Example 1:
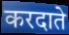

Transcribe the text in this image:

करदाते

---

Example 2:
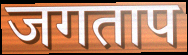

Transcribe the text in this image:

जगताप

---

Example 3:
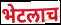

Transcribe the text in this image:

भेटलाच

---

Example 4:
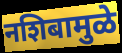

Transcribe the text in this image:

नशिबामुळे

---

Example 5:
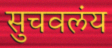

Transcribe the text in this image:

सुचवलंय